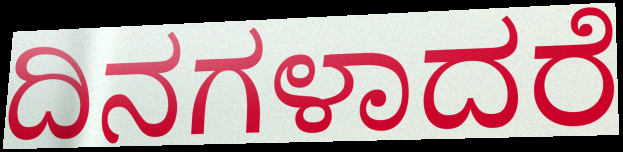
ದಿನಗಳಾದರೆ